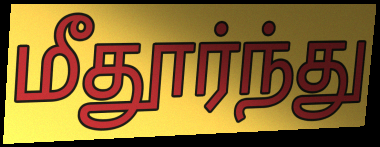
மீதூர்ந்து